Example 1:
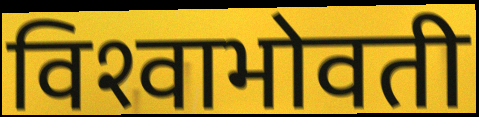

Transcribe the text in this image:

विश्वाभोवती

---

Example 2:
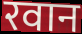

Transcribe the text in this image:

रवान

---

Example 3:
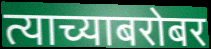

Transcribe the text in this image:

त्याच्याबरोबर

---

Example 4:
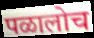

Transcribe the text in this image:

पळालोच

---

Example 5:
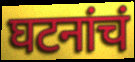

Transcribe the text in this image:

घटनांचं